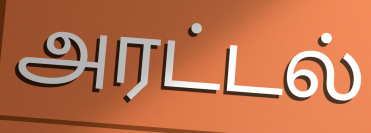
அரட்டல்